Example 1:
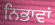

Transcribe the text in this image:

ਨਿਭਾਵਾਂ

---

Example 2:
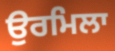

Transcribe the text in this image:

ਉਰਮਿਲਾ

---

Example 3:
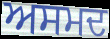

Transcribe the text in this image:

ਅਸਮਦ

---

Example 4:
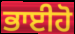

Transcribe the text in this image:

ਭਾਈਹੋ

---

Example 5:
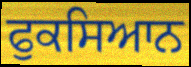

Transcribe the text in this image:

ਫੁਕਸਿਆਨ